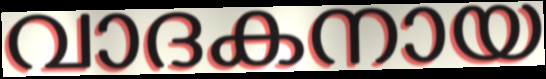
വാദകനായ